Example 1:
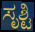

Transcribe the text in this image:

ಸೃಶ್ಟಿ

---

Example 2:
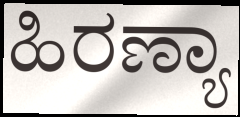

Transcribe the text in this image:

ಹಿರಣ್ಯಾ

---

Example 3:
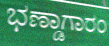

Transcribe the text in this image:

ಭಣ್ಡಾಗಾರಂ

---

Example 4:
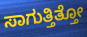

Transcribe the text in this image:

ಸಾಗುತ್ತಿತ್ತೋ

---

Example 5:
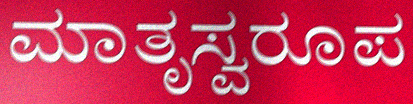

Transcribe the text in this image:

ಮಾತೃಸ್ವರೂಪ